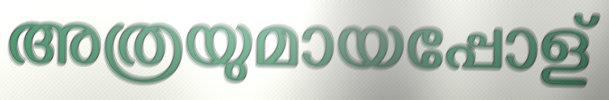
അത്രയുമായപ്പോള്